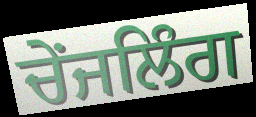
ਚੇਂਜਲਿੰਗ